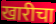
खारीचा